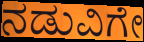
ನಡುವಿಗೇ